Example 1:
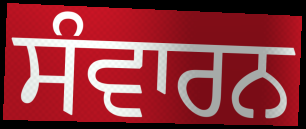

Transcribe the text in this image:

ਸੰਵਾਰਨ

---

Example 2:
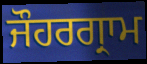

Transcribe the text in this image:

ਜੌਹਰਗ੍ਰਾਮ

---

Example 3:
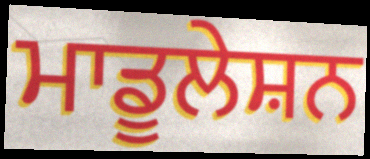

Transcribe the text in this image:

ਮਾਡੂਲੇਸ਼ਨ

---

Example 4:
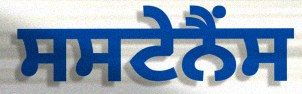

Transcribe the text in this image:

ਸਸਟੇਨੈਂਸ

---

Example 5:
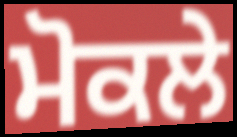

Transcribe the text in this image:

ਮੋਕਲੇ